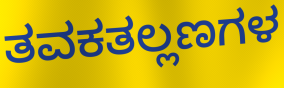
ತವಕತಲ್ಲಣಗಳ